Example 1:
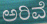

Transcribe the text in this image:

ಅರಿವೆ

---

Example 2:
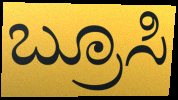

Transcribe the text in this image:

ಬ್ರೂಸಿ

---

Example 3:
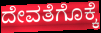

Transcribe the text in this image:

ದೇವತೆಗೊಕ್ಕೆ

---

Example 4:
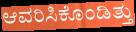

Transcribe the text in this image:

ಆವರಿಸಿಕೊಂಡಿತ್ತು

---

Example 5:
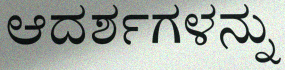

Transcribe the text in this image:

ಆದರ್ಶಗಳನ್ನು